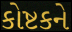
કોષ્ટકને